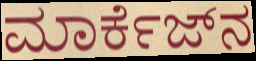
ಮಾರ್ಕೆಜ್‌ನ